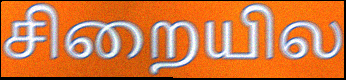
சிறையில